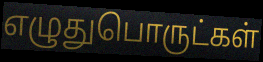
எழுதுபொருட்கள்